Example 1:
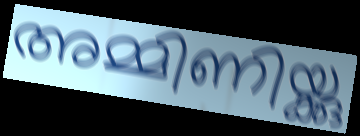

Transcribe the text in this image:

അമ്മിണിയ്ക്കു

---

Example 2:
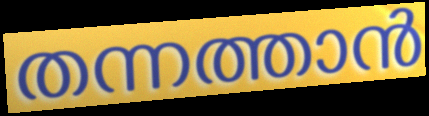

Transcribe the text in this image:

തന്നത്താൻ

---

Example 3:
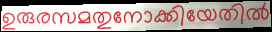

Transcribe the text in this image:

ഉരുരസമതുനോക്കിയേതിൽ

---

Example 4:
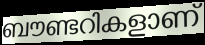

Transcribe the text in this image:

ബൗണ്ടറികളാണ്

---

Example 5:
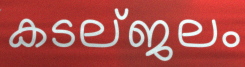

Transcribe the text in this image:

കടല്ജലം